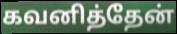
கவனித்தேன்